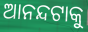
ଆନନ୍ଦଟାକୁ